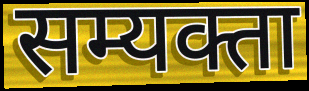
सम्यक्ता